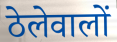
ठेलेवालों